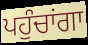
ਪਹੁੰਚਾਂਗਾ